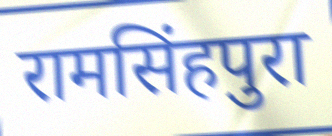
रामसिंहपुरा